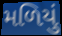
મળિયું